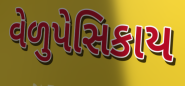
વેળુપેસિકાય